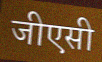
जीएसी